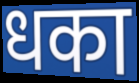
धका